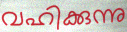
വഹിക്കുന്നു